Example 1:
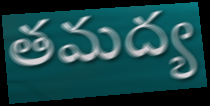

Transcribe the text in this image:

తమద్య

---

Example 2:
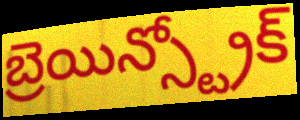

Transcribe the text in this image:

బ్రెయిన్స్ట్రోక్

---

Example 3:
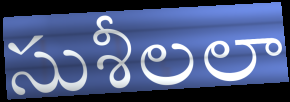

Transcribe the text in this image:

సుశీలలా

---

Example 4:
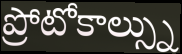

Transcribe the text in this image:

ప్రోటోకాల్స్ను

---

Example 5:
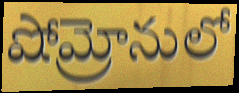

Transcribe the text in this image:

షోమ్రోనులో